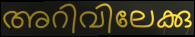
അറിവിലേക്കു